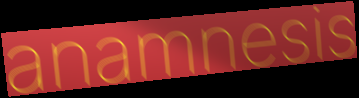
anamnesis